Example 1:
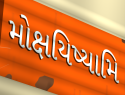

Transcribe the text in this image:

મોક્ષયિષ્યામિ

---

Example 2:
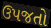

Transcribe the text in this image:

ઉપજતો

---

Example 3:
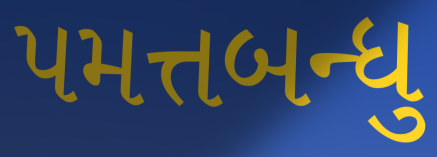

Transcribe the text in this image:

પમત્તબન્ધુ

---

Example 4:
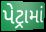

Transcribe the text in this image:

પેટ્રામાં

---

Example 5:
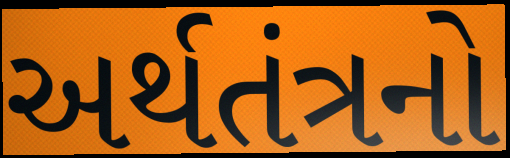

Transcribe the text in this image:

અર્થતંત્રનો